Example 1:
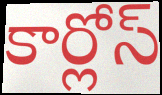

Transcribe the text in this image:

కార్లోస్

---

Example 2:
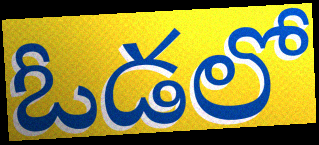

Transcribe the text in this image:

ఓడలో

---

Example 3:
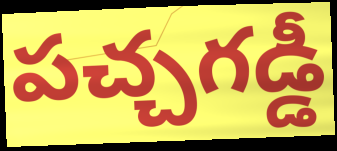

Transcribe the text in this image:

పచ్చగడ్డీ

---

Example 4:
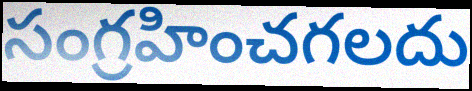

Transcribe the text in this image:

సంగ్రహించగలదు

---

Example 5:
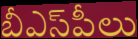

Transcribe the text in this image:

బీఎస్‌పీలు